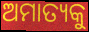
ଅମାତ୍ୟକୁ